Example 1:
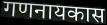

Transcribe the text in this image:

गणनायकास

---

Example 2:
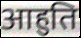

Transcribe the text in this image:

आहुति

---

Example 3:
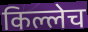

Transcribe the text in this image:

किल्लेच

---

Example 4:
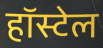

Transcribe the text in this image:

हॉस्टेल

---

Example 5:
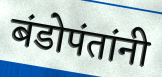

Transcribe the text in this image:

बंडोपंतांनी